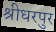
श्रीधरपुर